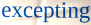
excepting